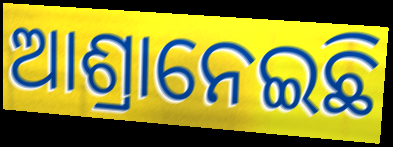
ଆଶ୍ରାନେଇଛି